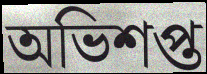
অভিশপ্ত